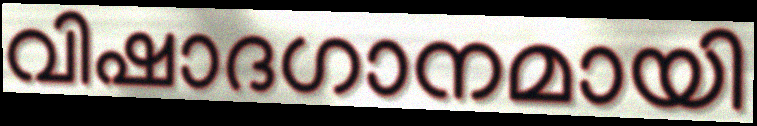
വിഷാദഗാനമായി